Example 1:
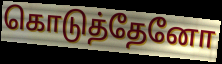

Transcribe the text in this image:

கொடுத்தேனோ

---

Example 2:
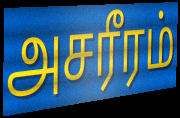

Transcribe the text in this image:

அசரீரம்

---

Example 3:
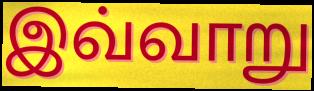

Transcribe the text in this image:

இவ்வாறு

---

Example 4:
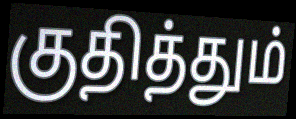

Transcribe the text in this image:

குதித்தும்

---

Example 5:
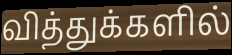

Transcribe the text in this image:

வித்துக்களில்